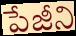
పేజీని